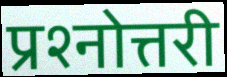
प्रश्नोत्तरी